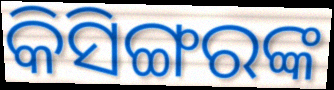
କିସିଙ୍ଗରଙ୍କ